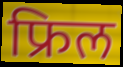
फ्रिल